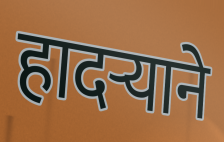
हादऱ्याने